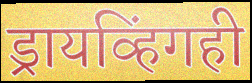
ड्रायव्हिंगही